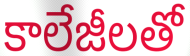
కాలేజీలతో